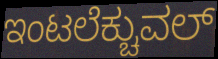
ಇಂಟಲೆಕ್ಚುವಲ್